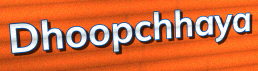
Dhoopchhaya